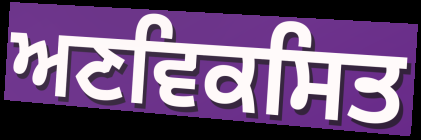
ਅਣਵਿਕਸਿਤ